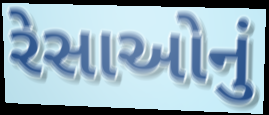
રેસાઓનું